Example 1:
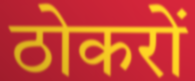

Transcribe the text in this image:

ठोकरों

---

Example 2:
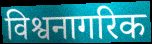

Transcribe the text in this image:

विश्वनागरिक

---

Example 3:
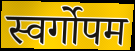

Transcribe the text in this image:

स्वर्गोपम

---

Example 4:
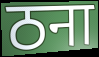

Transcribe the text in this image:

ठना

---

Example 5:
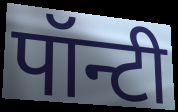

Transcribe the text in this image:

पॉन्टी